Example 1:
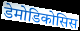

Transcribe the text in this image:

डेमोडिकोसिस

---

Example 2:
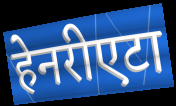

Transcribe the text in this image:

हेनरीएटा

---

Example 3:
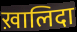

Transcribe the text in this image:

ख़ालिदा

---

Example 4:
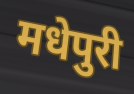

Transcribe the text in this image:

मधेपुरी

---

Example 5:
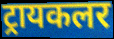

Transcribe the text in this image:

ट्रायकलर